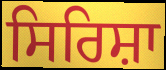
ਸਿਰਿਸ਼ਾ